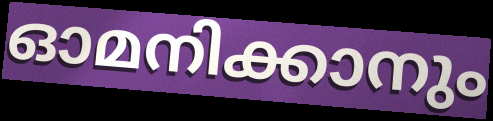
ഓമനിക്കാനും